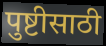
पुष्टीसाठी